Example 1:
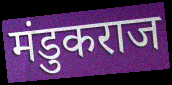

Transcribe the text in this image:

मंडुकराज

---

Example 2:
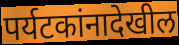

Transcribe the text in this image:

पर्यटकांनादेखील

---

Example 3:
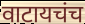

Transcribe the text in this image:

वाटायचंच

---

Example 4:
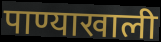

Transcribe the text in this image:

पाण्याखाली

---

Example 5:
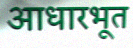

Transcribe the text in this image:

आधारभूत